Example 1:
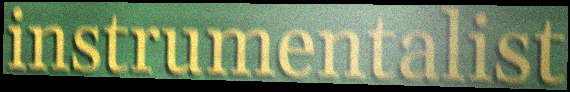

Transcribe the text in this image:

instrumentalist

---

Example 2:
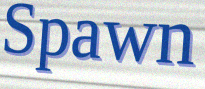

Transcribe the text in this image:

Spawn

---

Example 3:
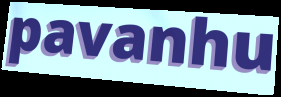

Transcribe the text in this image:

pavanhu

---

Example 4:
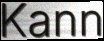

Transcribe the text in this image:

Kann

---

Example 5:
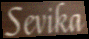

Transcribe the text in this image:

Sevika